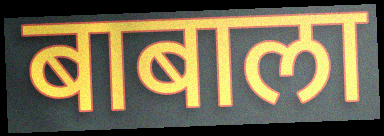
बाबाला